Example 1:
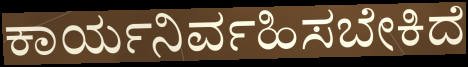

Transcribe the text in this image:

ಕಾರ್ಯನಿರ್ವಹಿಸಬೇಕಿದೆ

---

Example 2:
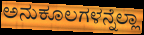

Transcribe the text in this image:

ಅನುಕೂಲಗಳನ್ನೆಲ್ಲಾ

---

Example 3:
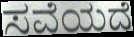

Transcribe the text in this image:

ಸವೆಯದೆ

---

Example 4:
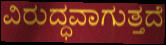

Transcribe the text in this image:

ವಿರುದ್ಧವಾಗುತ್ತದೆ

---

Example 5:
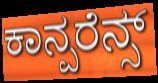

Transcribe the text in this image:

ಕಾನ್ಪರೆನ್ಸ್